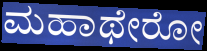
ಮಹಾಥೇರೋ